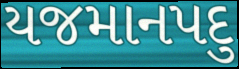
યજમાનપદુ